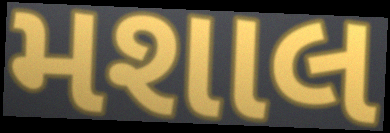
મશાલ